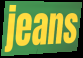
jeans